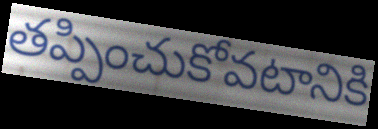
తప్పించుకోవటానికి